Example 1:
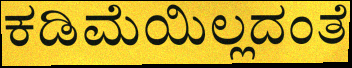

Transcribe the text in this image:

ಕಡಿಮೆಯಿಲ್ಲದಂತೆ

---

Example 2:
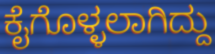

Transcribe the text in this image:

ಕೈಗೊಳ್ಳಲಾಗಿದ್ದು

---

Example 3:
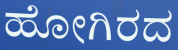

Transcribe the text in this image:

ಹೋಗಿರದ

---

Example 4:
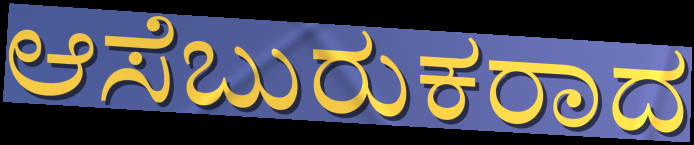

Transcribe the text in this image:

ಆಸೆಬುರುಕರಾದ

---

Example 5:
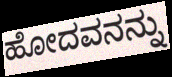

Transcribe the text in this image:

ಹೋದವನನ್ನು